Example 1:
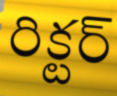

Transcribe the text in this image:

రిక్టర్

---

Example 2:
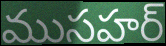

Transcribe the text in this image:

ముసహర్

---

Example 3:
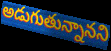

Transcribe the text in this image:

అడుగుతున్నానని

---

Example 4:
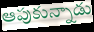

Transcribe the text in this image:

ఆపుకున్నాడు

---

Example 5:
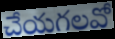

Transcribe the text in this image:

చేయగలవో